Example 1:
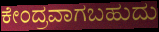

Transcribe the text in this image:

ಕೇಂದ್ರವಾಗಬಹುದು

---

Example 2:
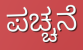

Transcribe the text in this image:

ಪಚ್ಚನೆ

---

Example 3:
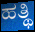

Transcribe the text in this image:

ಹತ್ಥಿ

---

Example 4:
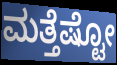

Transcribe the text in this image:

ಮತ್ತೆಷ್ಟೋ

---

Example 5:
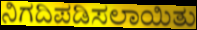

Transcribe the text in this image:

ನಿಗದಿಪಡಿಸಲಾಯಿತು